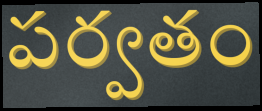
పర్వతం